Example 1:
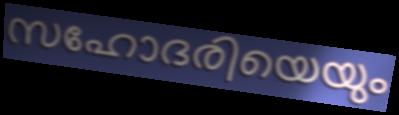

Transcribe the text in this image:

സഹോദരിയെയും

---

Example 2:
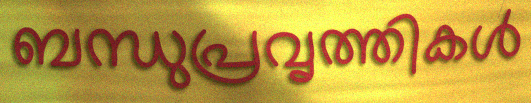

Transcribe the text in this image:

ബന്ധുപ്രവൃത്തികൾ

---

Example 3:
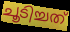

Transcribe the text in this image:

ചൂടിച്ചത്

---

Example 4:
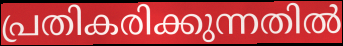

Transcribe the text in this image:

പ്രതികരിക്കുന്നതിൽ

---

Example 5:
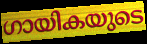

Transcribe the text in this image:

ഗായികയുടെ